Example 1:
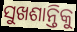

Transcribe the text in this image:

ସୁଖଶାନ୍ତିକୁ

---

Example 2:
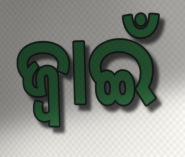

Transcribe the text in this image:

ଜ୍ବାଇଁ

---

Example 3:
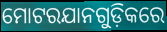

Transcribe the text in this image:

ମୋଟରଯାନଗୁଡ଼ିକରେ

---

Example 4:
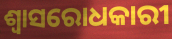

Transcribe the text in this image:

ଶ୍ୱାସରୋଧକାରୀ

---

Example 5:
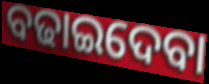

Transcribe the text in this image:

ବଢାଇଦେବା